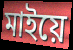
মাইয়ে